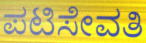
ಪಟಿಸೇವತಿ